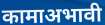
कामाअभावी